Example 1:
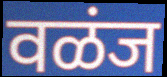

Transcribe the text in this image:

वळंज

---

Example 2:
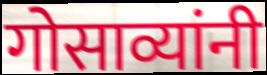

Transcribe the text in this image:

गोसाव्यांनी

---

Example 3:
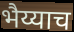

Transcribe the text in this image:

भैय्याच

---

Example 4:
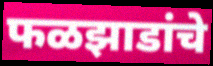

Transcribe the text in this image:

फळझाडांचे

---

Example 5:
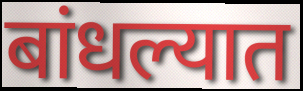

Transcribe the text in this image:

बांधल्यात